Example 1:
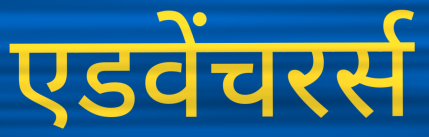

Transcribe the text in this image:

एडवेंचरर्स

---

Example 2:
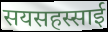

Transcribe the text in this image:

सयसहस्साई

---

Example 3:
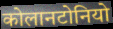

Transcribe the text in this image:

कोलानटोनियो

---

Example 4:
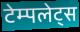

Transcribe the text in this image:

टेम्पलेट्स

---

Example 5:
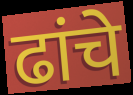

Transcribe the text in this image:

ढांचे